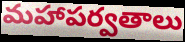
మహాపర్వతాలు